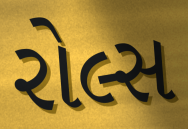
રોલ્સ